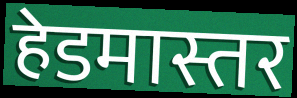
हेडमास्तर